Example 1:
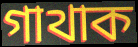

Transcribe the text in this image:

গাথাক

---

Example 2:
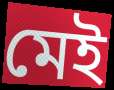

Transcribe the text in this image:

মেই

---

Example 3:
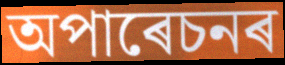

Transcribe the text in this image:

অপাৰেচনৰ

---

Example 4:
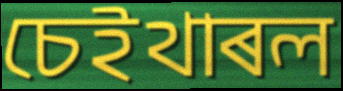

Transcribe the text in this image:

চেইথাৰল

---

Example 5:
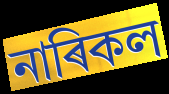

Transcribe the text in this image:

নাৰিকল